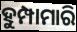
ହୁମ୍ପାମାରି